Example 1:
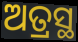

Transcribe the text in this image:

ଅତ୍ରସ୍ଥ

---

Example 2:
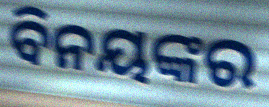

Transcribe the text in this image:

ବିନୟଙ୍କର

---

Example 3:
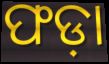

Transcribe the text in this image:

ଫଡ଼ା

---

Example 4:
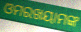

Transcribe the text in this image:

ଓମରଖୟାମଙ୍କ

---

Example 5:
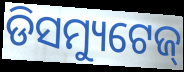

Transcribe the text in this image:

ଡିସମ୍ୟୁଟେଜ୍